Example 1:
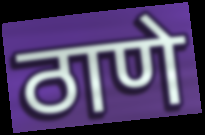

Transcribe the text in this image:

ठाणे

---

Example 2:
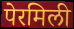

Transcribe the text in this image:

पेरमिली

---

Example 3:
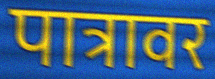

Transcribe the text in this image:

पात्रावर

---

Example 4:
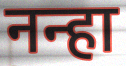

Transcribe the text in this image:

नन्हा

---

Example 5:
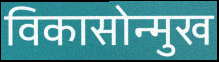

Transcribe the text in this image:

विकासोन्मुख